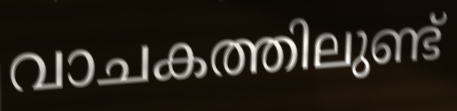
വാചകത്തിലുണ്ട്